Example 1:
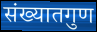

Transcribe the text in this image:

संख्यातगुण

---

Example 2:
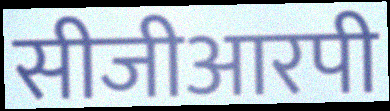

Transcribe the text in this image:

सीजीआरपी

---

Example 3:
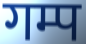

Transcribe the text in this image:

गम्प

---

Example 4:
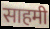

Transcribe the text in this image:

साहमी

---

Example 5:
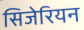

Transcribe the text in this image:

सिजेरियन